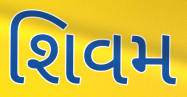
શિવમ